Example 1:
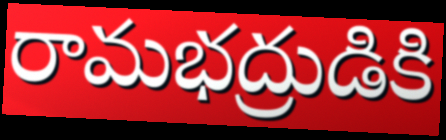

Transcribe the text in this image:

రామభద్రుడికి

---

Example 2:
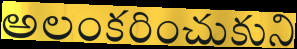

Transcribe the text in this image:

అలంకరించుకుని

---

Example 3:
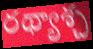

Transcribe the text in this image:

రథ్యాశ్చ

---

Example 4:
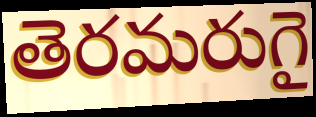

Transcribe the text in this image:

తెరమరుగై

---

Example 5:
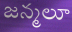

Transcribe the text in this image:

జన్మలూ